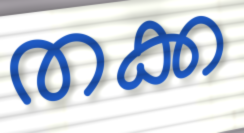
തക്ക